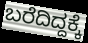
ಬರೆದಿದ್ದಕ್ಕೆ